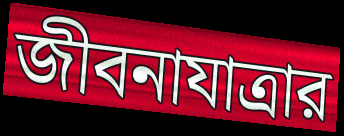
জীবনাযাত্রার